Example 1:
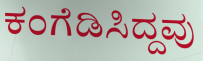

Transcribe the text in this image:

ಕಂಗೆಡಿಸಿದ್ದವು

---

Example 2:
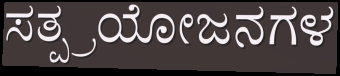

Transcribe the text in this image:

ಸತ್ಪ್ರಯೋಜನಗಳ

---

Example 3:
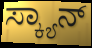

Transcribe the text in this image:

ಸ್ಕ್ಯಾನ್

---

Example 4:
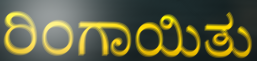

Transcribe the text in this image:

ರಿಂಗಾಯಿತು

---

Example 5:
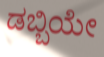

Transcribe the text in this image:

ಡಬ್ಬಿಯೇ